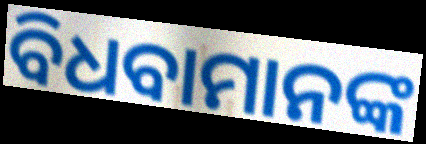
ବିଧବାମାନଙ୍କ